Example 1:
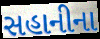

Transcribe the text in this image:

સહાનીના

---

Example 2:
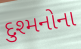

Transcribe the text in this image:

દુશ્મનોના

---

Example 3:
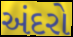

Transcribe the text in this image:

અંદરો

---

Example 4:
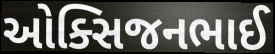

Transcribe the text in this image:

ઓક્સિજનભાઈ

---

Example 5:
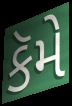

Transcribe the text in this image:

કૅમે